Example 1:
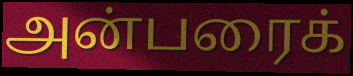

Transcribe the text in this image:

அன்பரைக்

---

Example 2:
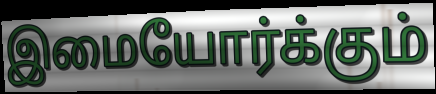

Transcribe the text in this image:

இமையோர்க்கும்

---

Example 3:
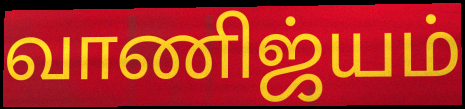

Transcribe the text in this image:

வாணிஜ்யம்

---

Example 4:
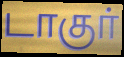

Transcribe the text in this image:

டாகுர்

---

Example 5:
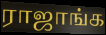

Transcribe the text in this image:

ராஜாங்க